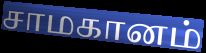
சாமகானம்